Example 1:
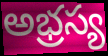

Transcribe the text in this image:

అభ్రస్య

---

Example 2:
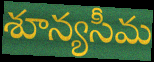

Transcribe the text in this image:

శూన్యసీమ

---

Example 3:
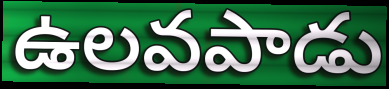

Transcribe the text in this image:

ఉలవపాడు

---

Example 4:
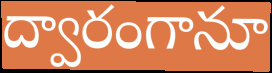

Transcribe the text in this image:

ద్వారంగానూ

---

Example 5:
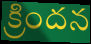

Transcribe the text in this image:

క్రిందన